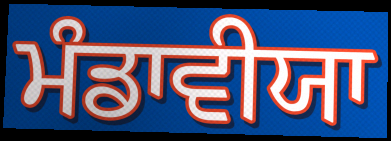
ਮੰਡਾਵੀਯਾ